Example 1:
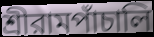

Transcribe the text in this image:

শ্রীরামপাঁচালি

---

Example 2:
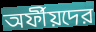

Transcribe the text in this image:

অর্ফীয়দের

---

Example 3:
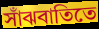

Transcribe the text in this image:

সাঁঝবাতিতে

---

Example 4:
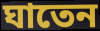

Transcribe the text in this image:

ঘাতেন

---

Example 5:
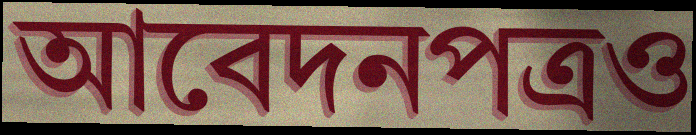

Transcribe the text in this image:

আবেদনপত্রও